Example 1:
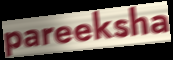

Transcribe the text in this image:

pareeksha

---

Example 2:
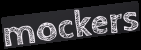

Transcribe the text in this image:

mockers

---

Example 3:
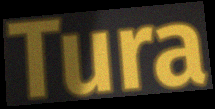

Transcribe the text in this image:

Tura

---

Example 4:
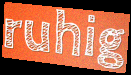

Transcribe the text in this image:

ruhig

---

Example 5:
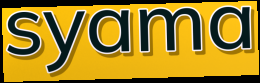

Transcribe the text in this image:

syama